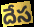
దేస